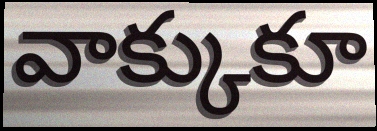
వాక్కుకూ